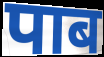
पाब